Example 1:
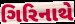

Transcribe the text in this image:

ગિરિનાથે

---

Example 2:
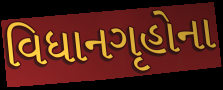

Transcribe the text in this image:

વિધાનગૃહોના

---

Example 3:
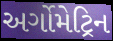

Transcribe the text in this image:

અર્ગોમેટ્રિન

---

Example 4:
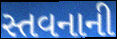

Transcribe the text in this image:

સ્તવનાની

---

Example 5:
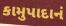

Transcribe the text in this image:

કામુપાદાનં